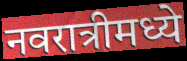
नवरात्रीमध्ये